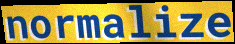
normalize